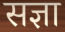
सज्ञा